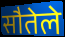
सौतेले